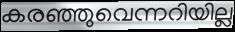
കരഞ്ഞുവെന്നറിയില്ല